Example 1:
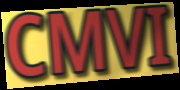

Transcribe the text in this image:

CMVI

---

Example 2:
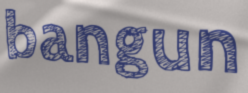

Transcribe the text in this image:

bangun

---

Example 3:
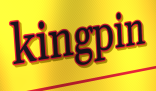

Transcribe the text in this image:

kingpin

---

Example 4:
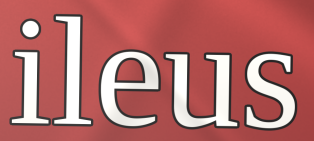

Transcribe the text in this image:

ileus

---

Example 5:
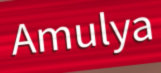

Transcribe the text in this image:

Amulya